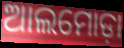
ଆଲମୋଡ଼ା